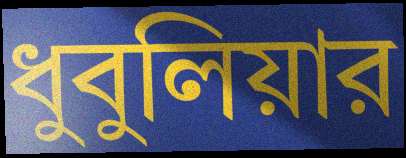
ধুবুলিয়ার